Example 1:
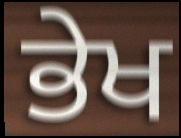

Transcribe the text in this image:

ਭੇਖ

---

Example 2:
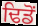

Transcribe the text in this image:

ਢਿਡੋਂ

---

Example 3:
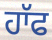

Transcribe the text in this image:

ਹਾੱਫ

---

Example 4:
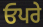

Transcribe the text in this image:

ਓਪਰੇ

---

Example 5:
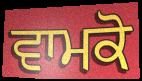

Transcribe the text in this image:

ਵਾਮਕੋ